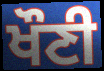
ਖੌਣੀ